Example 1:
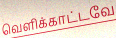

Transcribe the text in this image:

வெளிக்காட்டவே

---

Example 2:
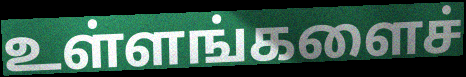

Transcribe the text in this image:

உள்ளங்களைச்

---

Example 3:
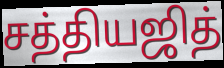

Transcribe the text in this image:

சத்தியஜித்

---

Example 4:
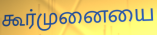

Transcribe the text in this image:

கூர்முனையை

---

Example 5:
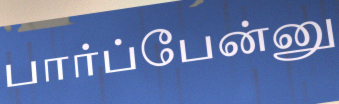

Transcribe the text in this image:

பார்ப்பேன்னு